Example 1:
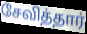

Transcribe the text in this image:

சேவித்தார்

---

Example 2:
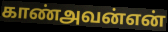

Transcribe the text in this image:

காண்அவன்என்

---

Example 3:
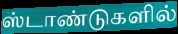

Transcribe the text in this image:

ஸ்டாண்டுகளில்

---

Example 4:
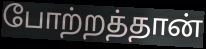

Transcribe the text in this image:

போற்றத்தான்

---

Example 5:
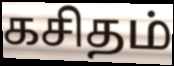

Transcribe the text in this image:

கசிதம்